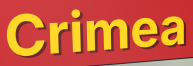
Crimea